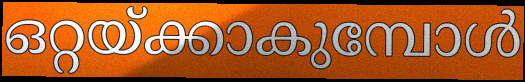
ഒറ്റയ്ക്കാകുമ്പോൾ